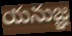
యనుజ్ఞ